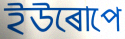
ইউৰোপে